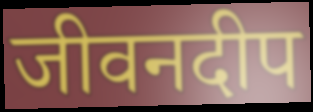
जीवनदीप